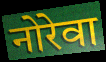
नोरेवा